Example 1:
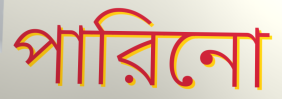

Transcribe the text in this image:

পারিনো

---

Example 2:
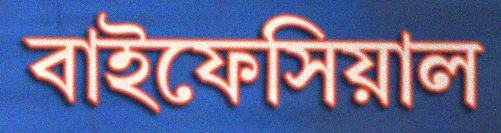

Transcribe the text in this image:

বাইফেসিয়াল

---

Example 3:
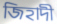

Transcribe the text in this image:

জিহাদী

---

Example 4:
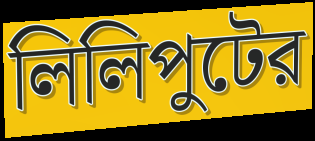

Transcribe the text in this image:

লিলিপুটের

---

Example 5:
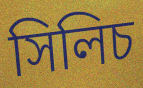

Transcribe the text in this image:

সিলিচ